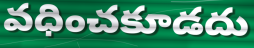
వధించకూడదు